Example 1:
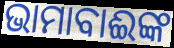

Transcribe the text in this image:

ଭାମାବାଈଙ୍କ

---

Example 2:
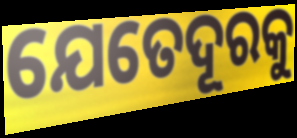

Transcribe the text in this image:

ଯେତେଦୂରକୁ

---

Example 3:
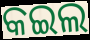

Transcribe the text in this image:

କଇଲ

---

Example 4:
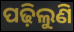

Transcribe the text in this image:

ପଢ଼ିଲୁଣି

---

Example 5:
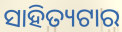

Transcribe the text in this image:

ସାହିତ୍ୟଟାର